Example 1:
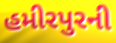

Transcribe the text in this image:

હમીરપુરની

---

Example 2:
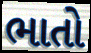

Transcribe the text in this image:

ભાતો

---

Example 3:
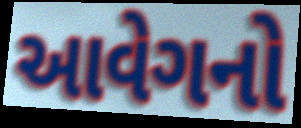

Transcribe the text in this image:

આવેગનો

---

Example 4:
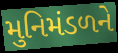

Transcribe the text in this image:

મુનિમંડળને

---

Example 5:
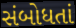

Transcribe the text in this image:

સંબોધતાં